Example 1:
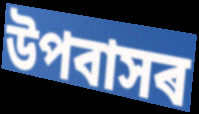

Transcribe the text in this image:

উপবাসৰ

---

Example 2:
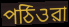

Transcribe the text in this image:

পঠিওৱা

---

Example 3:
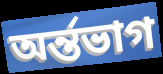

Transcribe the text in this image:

অৰ্ন্তভাগ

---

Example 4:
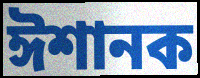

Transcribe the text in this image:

ঈশানক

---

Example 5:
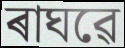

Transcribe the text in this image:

ৰাঘৱে